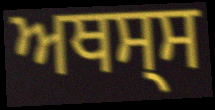
ਅਥਸ੍ਸ